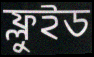
ফ্লুইড